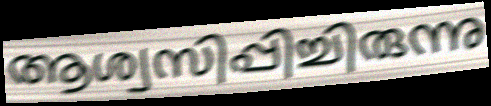
ആശ്വസിപ്പിച്ചിരുന്നു